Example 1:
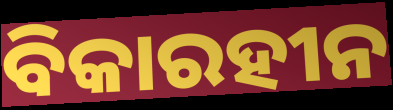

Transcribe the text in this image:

ବିକାରହୀନ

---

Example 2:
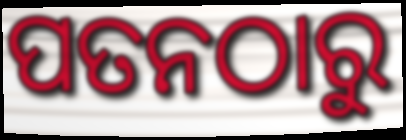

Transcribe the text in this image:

ପତନଠାରୁ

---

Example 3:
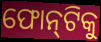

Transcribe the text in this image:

ଫୋନ୍‌ଟିକୁ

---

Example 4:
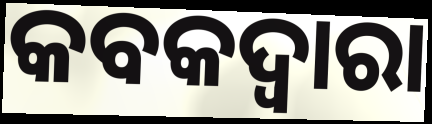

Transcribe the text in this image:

କବକଦ୍ୱାରା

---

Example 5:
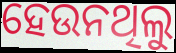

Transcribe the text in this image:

ହେଉନଥିଲୁ